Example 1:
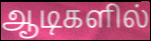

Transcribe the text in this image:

ஆடிகளில்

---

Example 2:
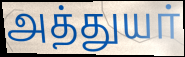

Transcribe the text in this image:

அத்துயர்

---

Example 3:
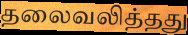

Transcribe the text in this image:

தலைவலித்தது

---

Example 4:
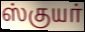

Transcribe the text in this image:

ஸ்குயர்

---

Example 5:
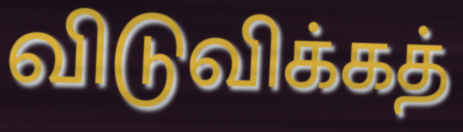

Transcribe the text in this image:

விடுவிக்கத்